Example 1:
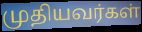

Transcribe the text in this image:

முதியவர்கள்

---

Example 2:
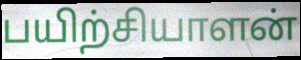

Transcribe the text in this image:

பயிற்சியாளன்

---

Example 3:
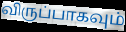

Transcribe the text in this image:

விருப்பாகவும்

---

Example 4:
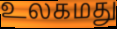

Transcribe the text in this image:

உலகமது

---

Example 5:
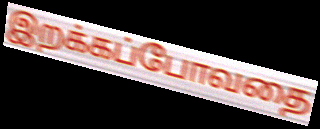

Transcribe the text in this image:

இறக்கப்போவதை